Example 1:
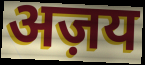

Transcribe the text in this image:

अज़य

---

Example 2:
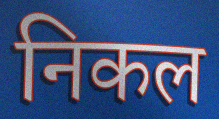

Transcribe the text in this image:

निकल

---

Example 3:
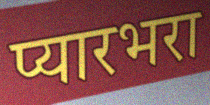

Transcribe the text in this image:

प्यारभरा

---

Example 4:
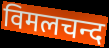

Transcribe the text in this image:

विमलचन्द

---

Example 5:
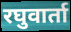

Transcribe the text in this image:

रघुवार्ता